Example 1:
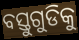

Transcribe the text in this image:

ବସ୍ତୁଗୁଡିକୁ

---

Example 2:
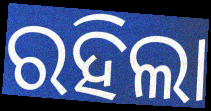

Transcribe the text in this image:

ରହିଲା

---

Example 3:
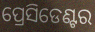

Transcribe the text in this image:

ପ୍ରେସିଡେଣ୍ଟର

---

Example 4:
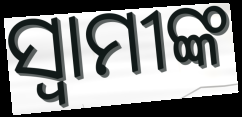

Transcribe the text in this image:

ସ୍ବାମୀଙ୍କ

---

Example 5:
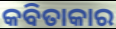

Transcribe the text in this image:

କବିତାକାର